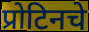
प्रोटिनचे